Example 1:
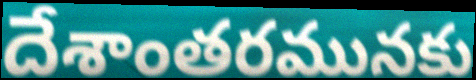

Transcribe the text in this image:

దేశాంతరమునకు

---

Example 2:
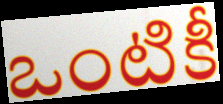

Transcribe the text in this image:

ఒంటికీ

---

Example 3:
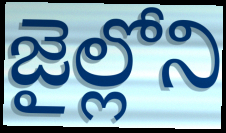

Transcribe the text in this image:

జైల్లోని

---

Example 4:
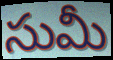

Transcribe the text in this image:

సుమీ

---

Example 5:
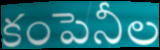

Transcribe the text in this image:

కంపెనీల